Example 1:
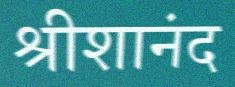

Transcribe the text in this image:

श्रीशानंद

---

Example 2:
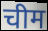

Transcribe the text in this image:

चीम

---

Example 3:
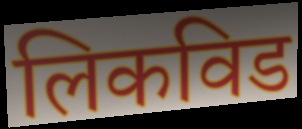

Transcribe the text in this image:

लिकविड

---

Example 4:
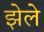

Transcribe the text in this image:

झेले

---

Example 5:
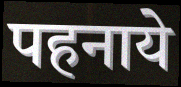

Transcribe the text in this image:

पहनाये